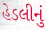
હેડલીનું